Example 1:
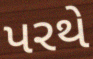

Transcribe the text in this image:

પરથે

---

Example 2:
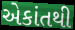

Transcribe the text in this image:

એકાંતથી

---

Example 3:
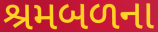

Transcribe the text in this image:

શ્રમબળના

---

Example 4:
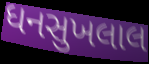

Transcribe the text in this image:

ધનસુખલાલ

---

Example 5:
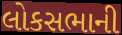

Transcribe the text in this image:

લોકસભાની